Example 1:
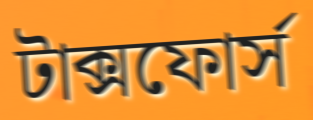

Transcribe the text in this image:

টাক্সফোর্স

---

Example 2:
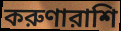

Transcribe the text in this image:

করুণারাশি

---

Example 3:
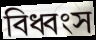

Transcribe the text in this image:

বিধ্বংস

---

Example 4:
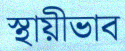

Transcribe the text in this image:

স্থায়ীভাব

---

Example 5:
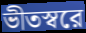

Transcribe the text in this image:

ভীতস্বরে